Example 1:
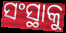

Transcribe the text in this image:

ସଂସ୍ଥାକୁ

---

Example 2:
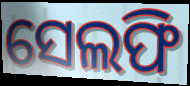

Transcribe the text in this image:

ସେଲଫି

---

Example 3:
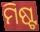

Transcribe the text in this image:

ମିଷ୍ଟ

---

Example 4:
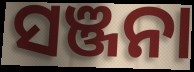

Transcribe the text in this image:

ସଞ୍ଜନା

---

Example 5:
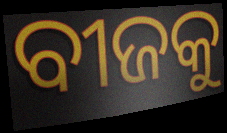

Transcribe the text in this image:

ବୀଜକୁ